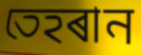
তেহৰান